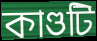
কাণ্ডটি